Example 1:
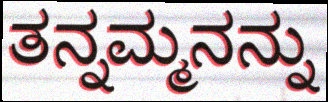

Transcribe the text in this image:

ತನ್ನಮ್ಮನನ್ನು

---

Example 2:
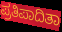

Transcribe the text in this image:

ಪ್ರತಿಪಾದಿತಾ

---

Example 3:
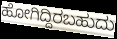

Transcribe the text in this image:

ಹೋಗಿದ್ದಿರಬಹುದು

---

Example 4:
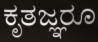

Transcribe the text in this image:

ಕೃತಜ್ಞರೂ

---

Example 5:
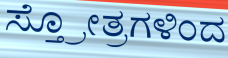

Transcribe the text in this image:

ಸ್ತ್ರೋತ್ರಗಳಿಂದ